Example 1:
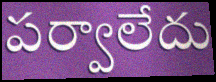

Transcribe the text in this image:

పర్వాలేదు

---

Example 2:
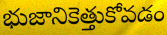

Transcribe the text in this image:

భుజానికెత్తుకోవడం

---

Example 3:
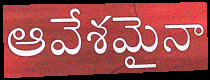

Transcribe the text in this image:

ఆవేశమైనా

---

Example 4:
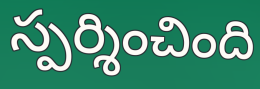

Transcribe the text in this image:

స్పర్శించింది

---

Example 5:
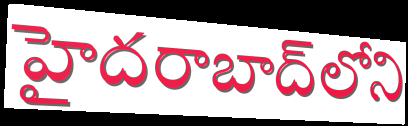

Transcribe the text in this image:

హైదరాబాద్‌లోని